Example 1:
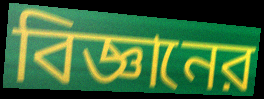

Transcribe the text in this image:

বিজ্ঞানের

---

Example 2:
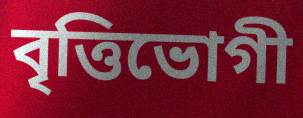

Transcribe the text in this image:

বৃত্তিভোগী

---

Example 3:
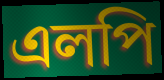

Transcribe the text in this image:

এলপি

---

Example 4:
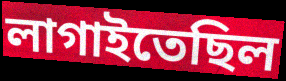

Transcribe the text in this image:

লাগাইতেছিল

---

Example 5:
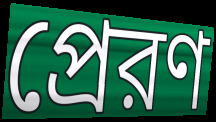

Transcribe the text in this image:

প্রেরণ